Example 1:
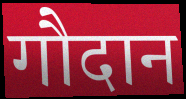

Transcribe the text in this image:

गौदान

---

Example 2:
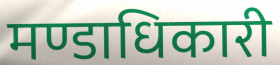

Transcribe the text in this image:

मण्डाधिकारी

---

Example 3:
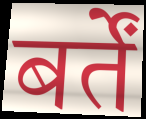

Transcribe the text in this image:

बर्तें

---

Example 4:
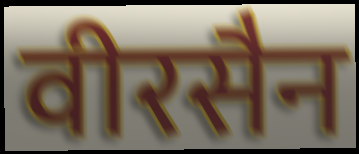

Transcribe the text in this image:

वीरसैन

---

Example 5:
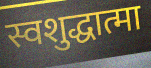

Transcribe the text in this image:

स्वशुद्धात्मा